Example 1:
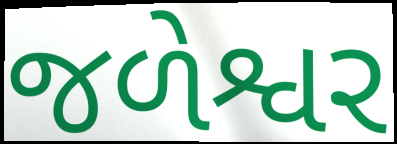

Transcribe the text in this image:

જળેશ્વર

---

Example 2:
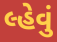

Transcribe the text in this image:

લ્હેવું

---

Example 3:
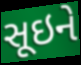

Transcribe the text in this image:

સૂઇને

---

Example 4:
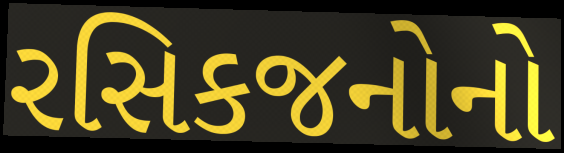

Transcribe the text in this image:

રસિકજનોનો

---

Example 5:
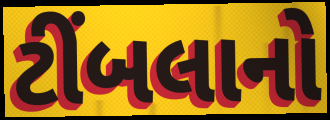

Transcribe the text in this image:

ટીંબલાનો